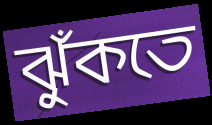
ঝুঁকতে